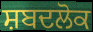
ਸ਼ਬਦਲੋਕ